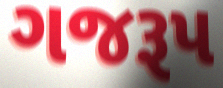
ગજરૂપ